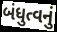
બંધુત્વનું